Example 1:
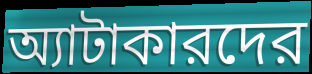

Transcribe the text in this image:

অ্যাটাকারদের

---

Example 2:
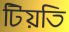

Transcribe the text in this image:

টিয়তি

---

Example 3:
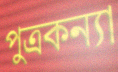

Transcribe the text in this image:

পুত্রকন্যা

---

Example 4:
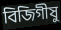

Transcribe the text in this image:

বিজিগীষু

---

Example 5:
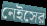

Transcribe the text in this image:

নেইসের